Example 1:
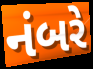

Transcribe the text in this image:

નંબરે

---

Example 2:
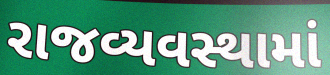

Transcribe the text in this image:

રાજવ્યવસ્થામાં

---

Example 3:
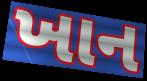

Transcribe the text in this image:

ખાન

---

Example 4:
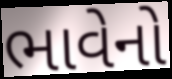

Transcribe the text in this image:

ભાવેનો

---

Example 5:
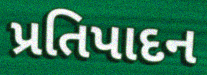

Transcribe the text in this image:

પ્રતિપાદન